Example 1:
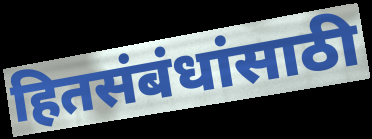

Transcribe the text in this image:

हितसंबंधांसाठी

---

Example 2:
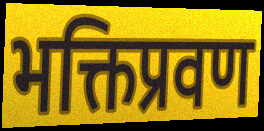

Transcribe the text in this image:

भक्तिप्रवण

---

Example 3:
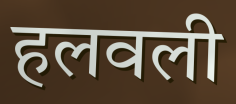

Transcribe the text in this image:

हलवली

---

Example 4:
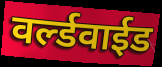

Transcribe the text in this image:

वर्ल्डवाईड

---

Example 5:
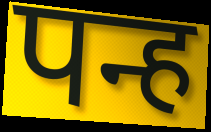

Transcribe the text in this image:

पन्ह